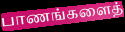
பாணங்களைத்